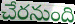
చేరనుంది